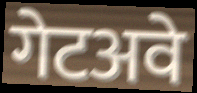
गेटअवे